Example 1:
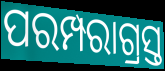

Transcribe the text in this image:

ପରମ୍ପରାଗ୍ରସ୍ତ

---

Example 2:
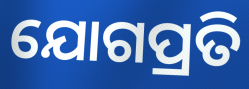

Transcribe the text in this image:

ଯୋଗପ୍ରତି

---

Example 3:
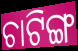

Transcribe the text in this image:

ଚାଟିଙ୍ଗ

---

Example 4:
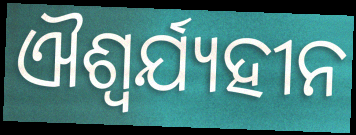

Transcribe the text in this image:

ଐଶ୍ୱର୍ଯ୍ୟହୀନ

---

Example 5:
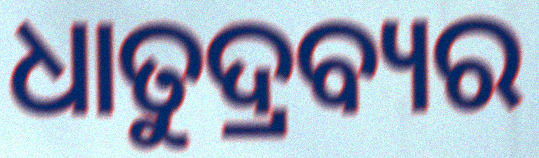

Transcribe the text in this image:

ଧାତୁଦ୍ରବ୍ୟର